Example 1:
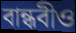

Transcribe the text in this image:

বান্ধবীও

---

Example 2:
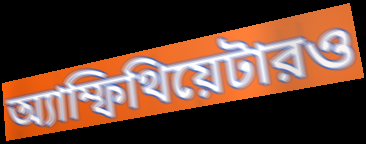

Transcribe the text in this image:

অ্যাম্ফিথিয়েটারও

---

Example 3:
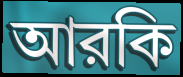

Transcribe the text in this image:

আরকি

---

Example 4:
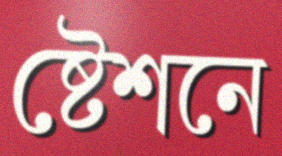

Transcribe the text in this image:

ষ্টেশনে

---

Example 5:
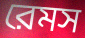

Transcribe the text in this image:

রেমস